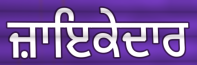
ਜ਼ਾਇਕੇਦਾਰ